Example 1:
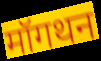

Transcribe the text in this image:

मॉगथन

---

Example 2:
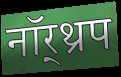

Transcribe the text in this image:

नॉर्थ्रप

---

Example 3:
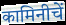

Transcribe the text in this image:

कामिनीचें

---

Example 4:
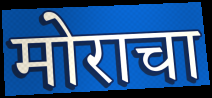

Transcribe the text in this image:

मोराचा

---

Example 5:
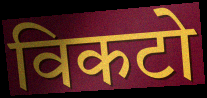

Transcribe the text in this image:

विकटो